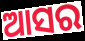
ଆସର